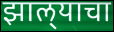
झाल्याचा